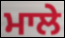
ਮਾਲੇ